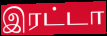
இரட்டா